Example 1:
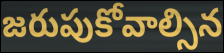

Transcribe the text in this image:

జరుపుకోవాల్సిన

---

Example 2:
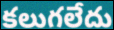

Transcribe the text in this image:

కలుగలేదు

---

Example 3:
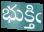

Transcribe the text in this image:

భుక్తిఁ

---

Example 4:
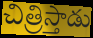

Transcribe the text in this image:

చిత్రిస్తాడు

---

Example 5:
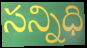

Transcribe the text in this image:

సన్నిధి